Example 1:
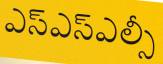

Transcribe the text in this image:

ఎస్ఎస్ఎల్సీ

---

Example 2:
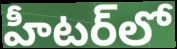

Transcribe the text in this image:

హీటర్‌లో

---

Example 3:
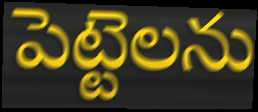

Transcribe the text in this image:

పెట్టెలను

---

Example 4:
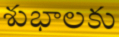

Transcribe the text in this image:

శుభాలకు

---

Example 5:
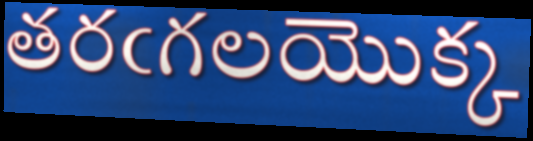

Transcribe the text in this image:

తరఁగలయొక్క